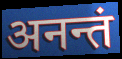
अनन्तं